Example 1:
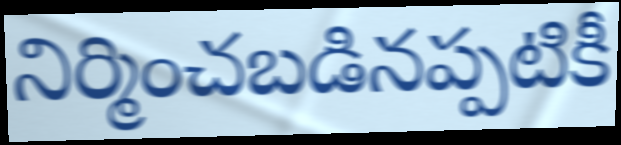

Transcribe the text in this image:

నిర్మించబడినప్పటికీ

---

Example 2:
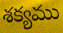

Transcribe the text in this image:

శక్యము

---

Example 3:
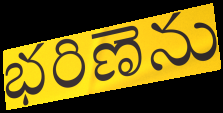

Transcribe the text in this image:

భరిణెను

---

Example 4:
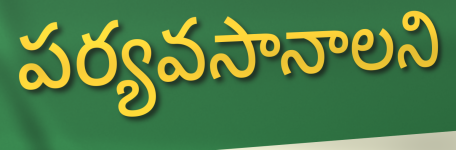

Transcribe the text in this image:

పర్యవసానాలని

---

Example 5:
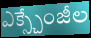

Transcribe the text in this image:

ఎక్స్చేంజీల